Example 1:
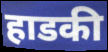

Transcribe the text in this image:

हाडकी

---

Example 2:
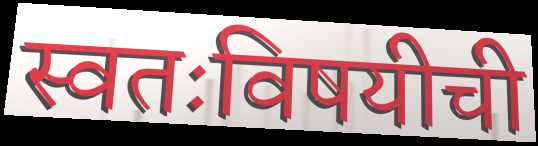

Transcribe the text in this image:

स्वतःविषयीची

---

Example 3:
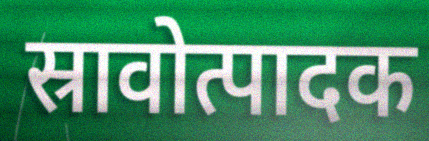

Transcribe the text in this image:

स्रावोत्पादक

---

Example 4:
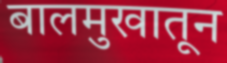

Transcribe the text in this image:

बालमुखातून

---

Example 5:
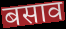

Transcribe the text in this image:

बसाव